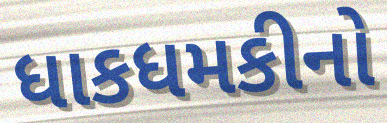
ધાકધમકીનો